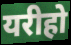
यरीहो